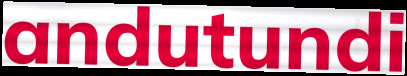
andutundi